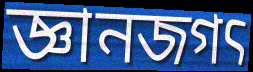
জ্ঞানজগৎ